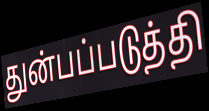
துன்பப்படுத்தி